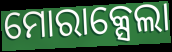
ମୋରାକ୍ସେଲା